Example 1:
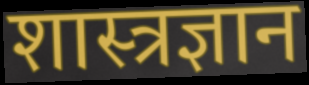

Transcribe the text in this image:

शास्त्रज्ञान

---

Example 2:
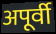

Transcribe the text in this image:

अपूर्वी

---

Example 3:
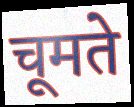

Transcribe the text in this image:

चूमते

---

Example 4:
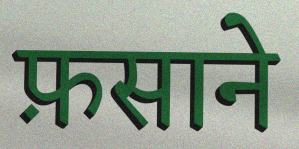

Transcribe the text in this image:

फ़साने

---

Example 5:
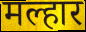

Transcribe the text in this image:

मल्हार